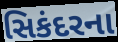
સિકંદરના